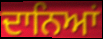
ਦਾਨਿਆਂ